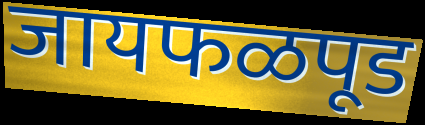
जायफळपूड